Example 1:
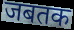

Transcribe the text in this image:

जबतक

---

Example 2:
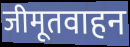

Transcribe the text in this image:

जीमूतवाहन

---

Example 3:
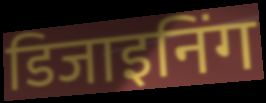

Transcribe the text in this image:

डिजाइनिंग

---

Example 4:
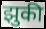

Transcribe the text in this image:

झुकी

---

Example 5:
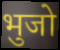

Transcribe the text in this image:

भुजो